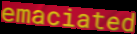
emaciated